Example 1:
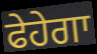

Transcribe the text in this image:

ਫੇਹੇਗਾ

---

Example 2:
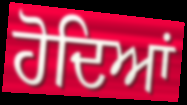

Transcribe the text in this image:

ਹੋਦਿਆਂ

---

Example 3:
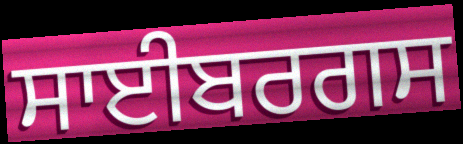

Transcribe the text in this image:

ਸਾਈਬਰਗਸ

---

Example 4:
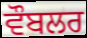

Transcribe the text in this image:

ਵੌਬਲਰ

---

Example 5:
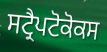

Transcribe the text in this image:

ਸਟ੍ਰੈਪਟੋਕੋਕਸ